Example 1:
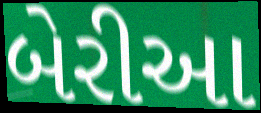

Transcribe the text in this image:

બેરીઆ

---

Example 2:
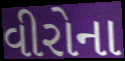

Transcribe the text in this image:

વીરોના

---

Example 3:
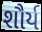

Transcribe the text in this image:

શૌર્ય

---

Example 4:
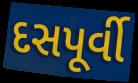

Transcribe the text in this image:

દસપૂર્વી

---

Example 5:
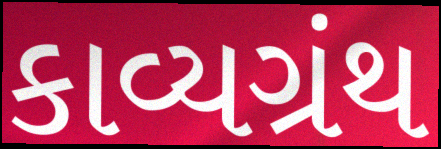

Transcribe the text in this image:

કાવ્યગ્રંથ